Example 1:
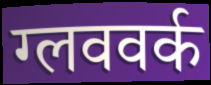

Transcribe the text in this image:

ग्लववर्क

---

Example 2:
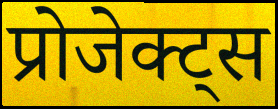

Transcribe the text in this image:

प्रोजेक्ट्स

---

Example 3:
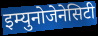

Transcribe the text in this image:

इम्युनोजेनेसिटी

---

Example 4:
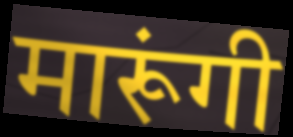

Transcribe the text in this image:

मारूंगी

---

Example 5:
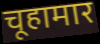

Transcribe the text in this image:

चूहामार